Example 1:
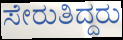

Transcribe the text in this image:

ಸೇರುತಿದ್ದರು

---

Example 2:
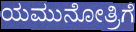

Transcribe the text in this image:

ಯಮುನೋತ್ರಿಗೆ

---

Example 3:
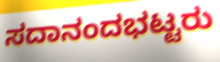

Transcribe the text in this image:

ಸದಾನಂದಭಟ್ಟರು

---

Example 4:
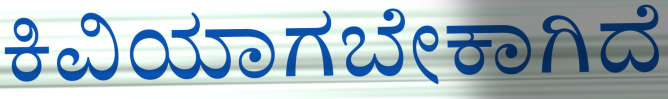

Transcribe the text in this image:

ಕಿವಿಯಾಗಬೇಕಾಗಿದೆ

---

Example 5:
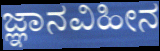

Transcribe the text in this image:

ಜ್ಞಾನವಿಹೀನ